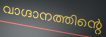
വാഗ്ദാനത്തിന്റെ